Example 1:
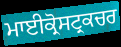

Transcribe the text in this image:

ਮਾਈਕ੍ਰੋਸਟ੍ਰਕਚਰ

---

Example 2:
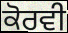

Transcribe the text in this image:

ਕੋਰਵੀ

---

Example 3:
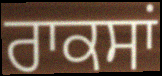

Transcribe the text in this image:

ਰਾਕਸਾਂ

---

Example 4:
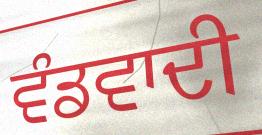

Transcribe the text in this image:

ਵੰਡਵਾਦੀ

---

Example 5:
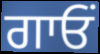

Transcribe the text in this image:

ਗਾਓਂ